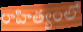
రాహిత్యంలో